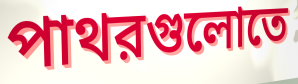
পাথরগুলোতে